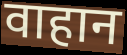
वाहान